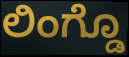
ಲಿಂಗ್ಡೊ